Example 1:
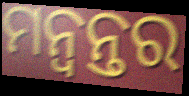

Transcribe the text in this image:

ମନ୍ୱନ୍ତର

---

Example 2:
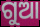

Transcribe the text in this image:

ଗୁଆ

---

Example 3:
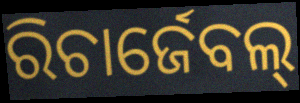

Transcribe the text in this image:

ରିଚାର୍ଜେବଲ୍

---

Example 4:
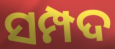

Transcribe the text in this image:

ସମ୍ପଦ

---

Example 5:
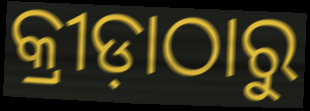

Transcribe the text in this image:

କ୍ରୀଡ଼ାଠାରୁ